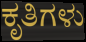
ಕೃತಿಗಳು